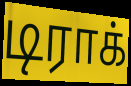
டிராக்